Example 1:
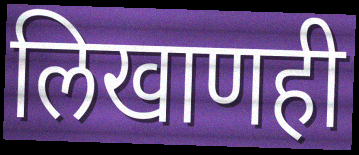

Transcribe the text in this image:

लिखाणही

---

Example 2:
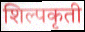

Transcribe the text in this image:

शिल्पकृती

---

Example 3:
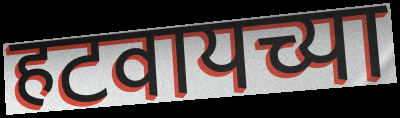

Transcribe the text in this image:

हटवायच्या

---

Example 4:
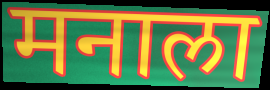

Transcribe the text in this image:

मनाला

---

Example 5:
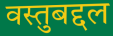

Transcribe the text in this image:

वस्तुबद्दल